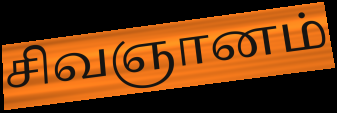
சிவஞானம்